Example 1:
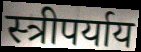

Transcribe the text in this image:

स्त्रीपर्याय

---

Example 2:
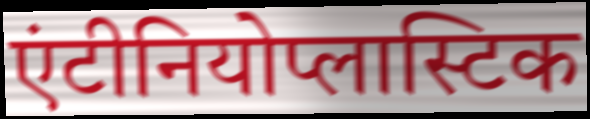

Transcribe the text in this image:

एंटीनियोप्लास्टिक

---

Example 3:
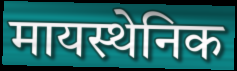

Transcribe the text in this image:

मायस्थेनिक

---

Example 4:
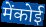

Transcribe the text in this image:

मेंकोई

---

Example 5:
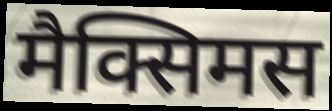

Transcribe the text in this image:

मैक्सिमस